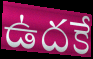
ఉదకే